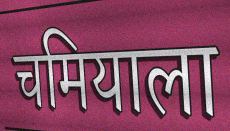
चमियाला